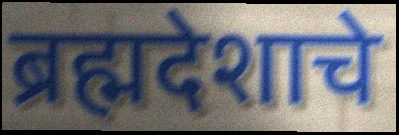
ब्रह्मदेशाचे